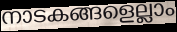
നാടകങ്ങളെല്ലാം